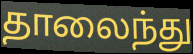
தாலைந்து